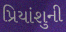
પ્રિયાંશુની